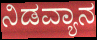
ನಿಡವ್ಯಾನ